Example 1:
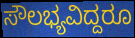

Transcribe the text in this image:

ಸೌಲಭ್ಯವಿದ್ದರೂ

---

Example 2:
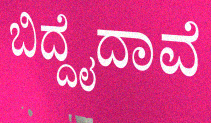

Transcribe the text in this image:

ಬಿದ್ದೈದಾವೆ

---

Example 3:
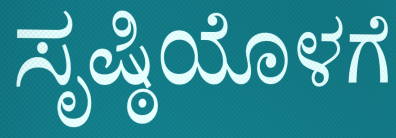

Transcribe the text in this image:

ಸೃಷ್ಠಿಯೊಳಗೆ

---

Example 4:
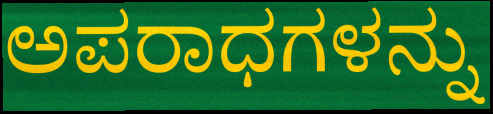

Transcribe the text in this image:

ಅಪರಾಧಗಳನ್ನು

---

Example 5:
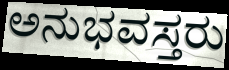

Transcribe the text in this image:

ಅನುಭವಸ್ತರು